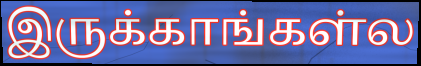
இருக்காங்கள்ல